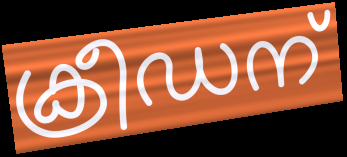
ക്രീഡന്